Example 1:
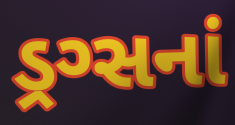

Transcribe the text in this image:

ડ્રગ્સનાં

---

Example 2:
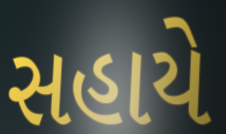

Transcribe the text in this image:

સહાયે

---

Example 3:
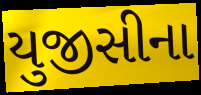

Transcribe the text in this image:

યુજીસીના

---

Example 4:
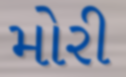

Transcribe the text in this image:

મોરી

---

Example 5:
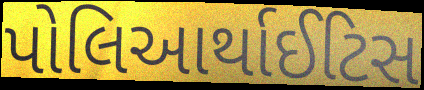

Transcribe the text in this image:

પોલિઆર્થાઈટિસ